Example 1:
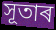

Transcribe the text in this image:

সূতাৰ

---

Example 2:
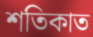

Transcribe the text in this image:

শতিকাত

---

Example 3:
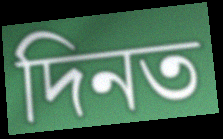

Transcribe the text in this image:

দিনত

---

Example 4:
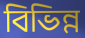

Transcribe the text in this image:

বিভিন্ন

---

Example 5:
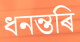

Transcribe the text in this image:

ধনন্তৰি